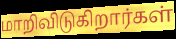
மாறிவிடுகிறார்கள்